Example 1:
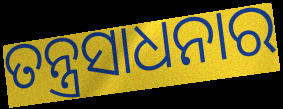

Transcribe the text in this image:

ତନ୍ତ୍ରସାଧନାର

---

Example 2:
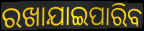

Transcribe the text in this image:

ରଖାଯାଇପାରିବ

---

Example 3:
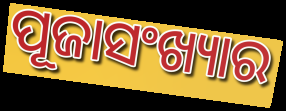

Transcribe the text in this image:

ପୂଜାସଂଖ୍ୟାର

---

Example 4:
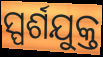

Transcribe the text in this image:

ସ୍ପର୍ଶଯୁକ୍ତ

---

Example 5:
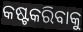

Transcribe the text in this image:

କଷ୍ଟକରିବାକୁ